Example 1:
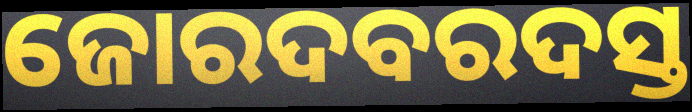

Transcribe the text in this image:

ଜୋରଦବରଦସ୍ତ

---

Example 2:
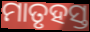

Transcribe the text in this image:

ମାତୃହସ୍ତ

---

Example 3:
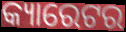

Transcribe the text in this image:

କ୍ୟାରେଟର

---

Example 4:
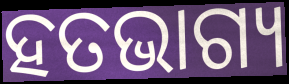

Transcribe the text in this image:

ହତଭାଗ୍ୟ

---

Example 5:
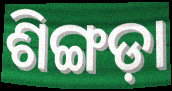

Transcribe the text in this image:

ଶିଙ୍ଗଡ଼ା